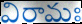
విరామః